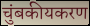
चुंबकीयकरण